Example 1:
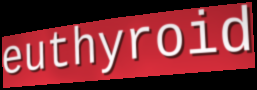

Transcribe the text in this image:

euthyroid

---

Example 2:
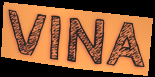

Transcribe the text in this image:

VINA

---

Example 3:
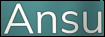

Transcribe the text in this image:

Ansu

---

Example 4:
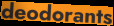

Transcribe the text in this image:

deodorants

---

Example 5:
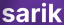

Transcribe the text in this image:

sarik